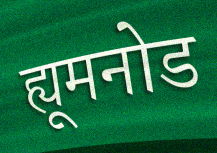
ह्यूमनोड